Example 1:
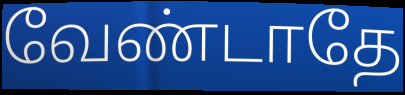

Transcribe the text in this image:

வேண்டாதே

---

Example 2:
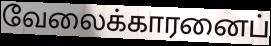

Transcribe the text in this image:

வேலைக்காரனைப்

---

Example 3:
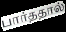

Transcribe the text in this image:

பார்ததால்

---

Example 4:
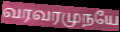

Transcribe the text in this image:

வரவரமுநயே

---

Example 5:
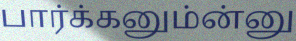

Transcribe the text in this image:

பார்க்கனும்ன்னு